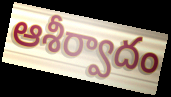
ఆశీర్వాదం